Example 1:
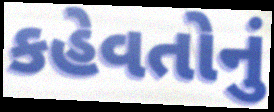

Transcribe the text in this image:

કહેવતોનું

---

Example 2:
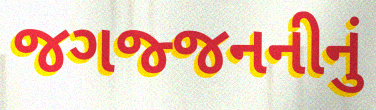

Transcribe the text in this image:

જગજ્જનનીનું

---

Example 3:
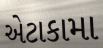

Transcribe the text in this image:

એટાકામા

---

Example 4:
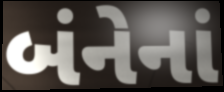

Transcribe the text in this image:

બંનેનાં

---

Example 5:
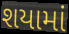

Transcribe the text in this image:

શયામાં